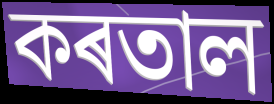
কৰতাল